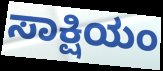
ಸಾಕ್ಷಿಯಂ